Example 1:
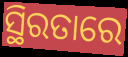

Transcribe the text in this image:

ସ୍ଥିରତାରେ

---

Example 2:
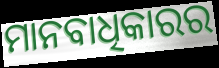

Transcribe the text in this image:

ମାନବାଧିକାରର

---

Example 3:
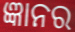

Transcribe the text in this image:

ଜ୍ଞାନର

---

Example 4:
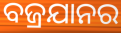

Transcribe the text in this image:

ବଜ୍ରଯାନର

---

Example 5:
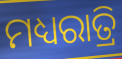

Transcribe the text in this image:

ମଧ୍ୟରାତ୍ରି